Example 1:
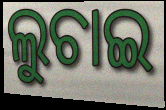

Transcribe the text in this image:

ଲୁଚାଇ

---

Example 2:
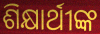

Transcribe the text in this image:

ଶିକ୍ଷାର୍ଥୀଙ୍କ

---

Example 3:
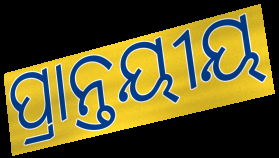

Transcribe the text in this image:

ପ୍ରାନ୍ତୟୀୟ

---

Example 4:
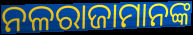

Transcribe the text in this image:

ନଳରାଜାମାନଙ୍କ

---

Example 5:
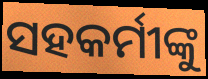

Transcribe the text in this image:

ସହକର୍ମୀଙ୍କୁ